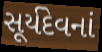
સૂર્યદેવનાં